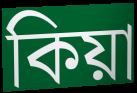
কিয়া